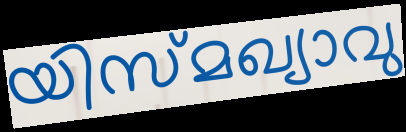
യിസ്മഖ്യാവു